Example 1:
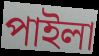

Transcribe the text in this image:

পাইলা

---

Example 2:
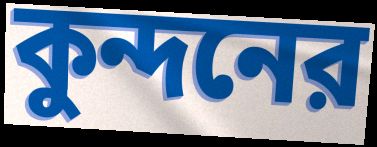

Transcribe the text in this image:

কুন্দনের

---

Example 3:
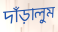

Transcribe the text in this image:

দাঁড়ালুম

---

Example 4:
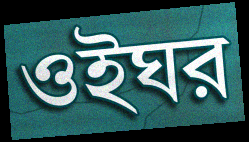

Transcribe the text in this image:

ওইঘর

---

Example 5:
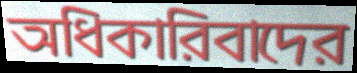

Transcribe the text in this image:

অধিকারিবাদের